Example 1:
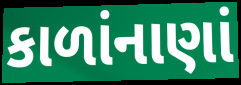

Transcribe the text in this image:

કાળાંનાણાં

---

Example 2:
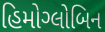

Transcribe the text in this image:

હિમોગ્લોબિન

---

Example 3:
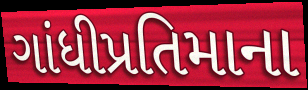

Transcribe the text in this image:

ગાંધીપ્રતિમાના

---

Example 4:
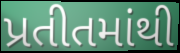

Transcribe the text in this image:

પ્રતીતમાંથી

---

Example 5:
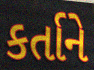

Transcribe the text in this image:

કર્તાને